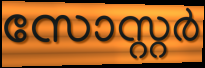
സോസ്റ്റർ